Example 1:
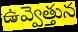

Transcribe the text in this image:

ఉవ్వెత్తున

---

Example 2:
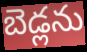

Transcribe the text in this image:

బెడ్లను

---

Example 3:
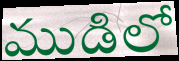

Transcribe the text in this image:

ముడిలో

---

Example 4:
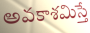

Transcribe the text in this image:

అవకాశమిస్తే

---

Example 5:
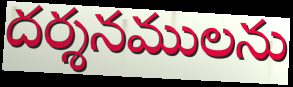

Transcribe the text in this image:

దర్శనములను